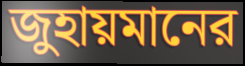
জুহায়মানের